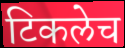
टिकलेच